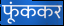
फूंककर